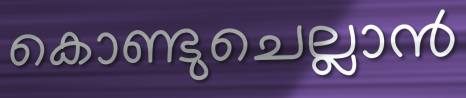
കൊണ്ടുചെല്ലാൻ